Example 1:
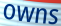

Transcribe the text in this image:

owns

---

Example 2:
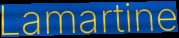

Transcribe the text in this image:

Lamartine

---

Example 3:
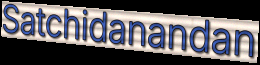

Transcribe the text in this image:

Satchidanandan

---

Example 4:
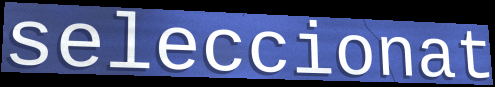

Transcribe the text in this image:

seleccionat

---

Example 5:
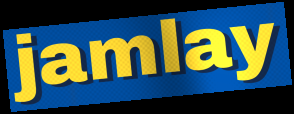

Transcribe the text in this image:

jamlay